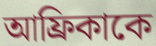
আফ্রিকাকে